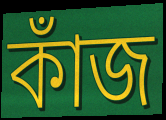
কাঁজ